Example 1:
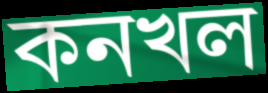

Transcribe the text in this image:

কনখল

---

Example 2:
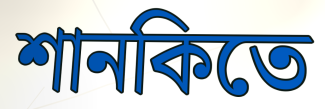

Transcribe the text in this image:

শানকিতে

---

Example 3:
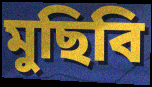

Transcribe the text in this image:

মুছিবি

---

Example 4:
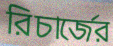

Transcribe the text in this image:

রিচার্জের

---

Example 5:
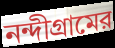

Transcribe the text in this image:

নন্দীগ্রামের